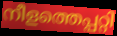
നീളത്തെപ്പറ്റി